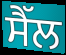
ਸੈੱਲ